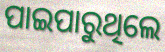
ପାଇପାରୁଥିଲେ